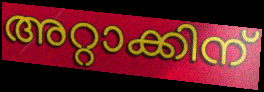
അറ്റാക്കിന്